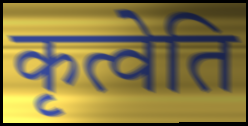
कृत्वेति